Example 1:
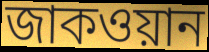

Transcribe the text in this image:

জাকওয়ান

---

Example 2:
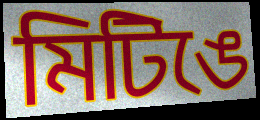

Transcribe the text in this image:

মিটিঙে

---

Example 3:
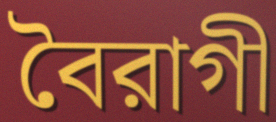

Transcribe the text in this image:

বৈরাগী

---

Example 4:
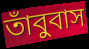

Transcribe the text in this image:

তাঁবুবাস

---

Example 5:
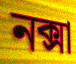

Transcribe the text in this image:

নক্সা